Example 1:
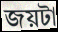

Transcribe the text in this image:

জয়টা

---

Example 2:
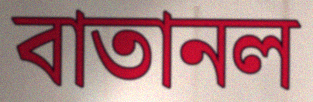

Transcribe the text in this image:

বাতানল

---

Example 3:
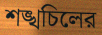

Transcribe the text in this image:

শঙ্খচিলের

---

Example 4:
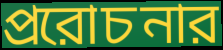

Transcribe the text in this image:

প্ররোচনার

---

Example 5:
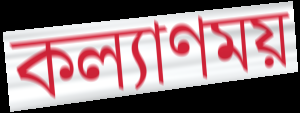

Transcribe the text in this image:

কল্যাণময়